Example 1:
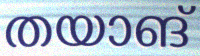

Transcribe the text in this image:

തയാങ്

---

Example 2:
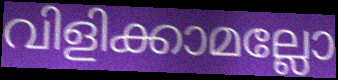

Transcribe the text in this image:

വിളിക്കാമല്ലോ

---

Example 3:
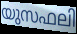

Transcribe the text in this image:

യുസഫലി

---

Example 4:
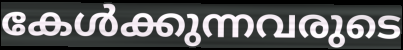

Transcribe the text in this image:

കേൾക്കുന്നവരുടെ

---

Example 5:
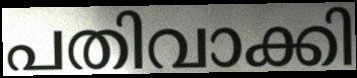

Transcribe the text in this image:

പതിവാക്കി